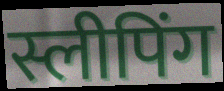
स्लीपिंग